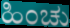
ಹಿಂಚು